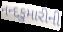
નન્દકુમારીની